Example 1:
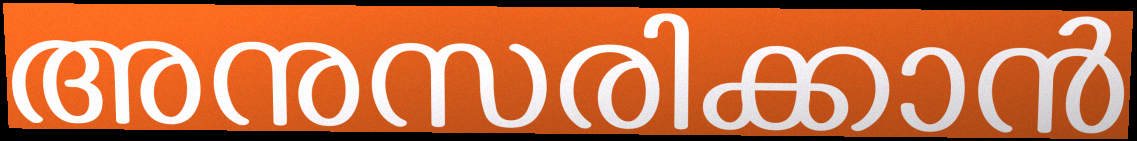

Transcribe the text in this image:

അനുസരിക്കാൻ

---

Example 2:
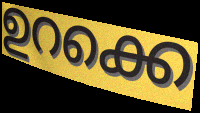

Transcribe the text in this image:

ഉറക്കെ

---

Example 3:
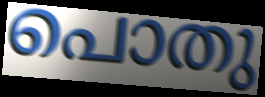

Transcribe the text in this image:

പൊതു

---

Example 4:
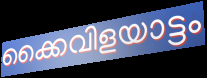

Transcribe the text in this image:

ക്കൈവിളയാട്ടം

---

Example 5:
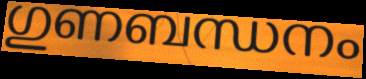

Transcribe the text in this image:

ഗുണബന്ധനം